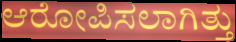
ಆರೋಪಿಸಲಾಗಿತ್ತು